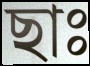
ছাঃ